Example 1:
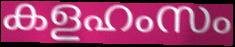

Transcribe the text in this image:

കളഹംസം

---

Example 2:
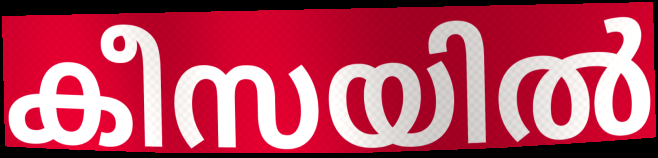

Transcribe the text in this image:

കീസയിൽ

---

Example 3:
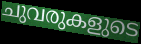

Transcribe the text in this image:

ചുവരുകളുടെ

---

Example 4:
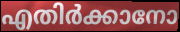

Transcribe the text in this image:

എതിർക്കാനോ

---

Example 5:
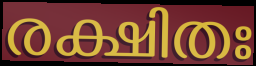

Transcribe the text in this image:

രക്ഷിതഃ